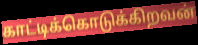
காட்டிக்கொடுக்கிறவன்